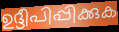
ഉദ്ദീപിപ്പിക്കുക